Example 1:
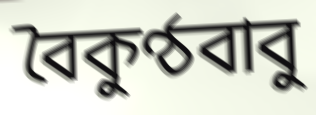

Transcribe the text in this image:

বৈকুণ্ঠবাবু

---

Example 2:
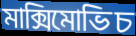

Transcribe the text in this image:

মাক্সিমোভিচ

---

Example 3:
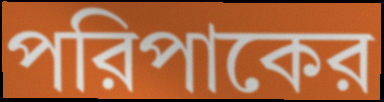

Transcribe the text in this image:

পরিপাকের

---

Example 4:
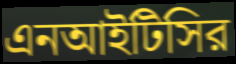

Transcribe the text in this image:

এনআইটিসির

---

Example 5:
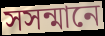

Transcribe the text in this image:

সসন্মানে